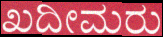
ಖದೀಮರು